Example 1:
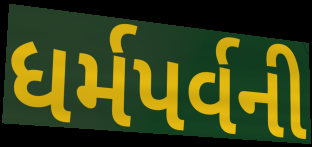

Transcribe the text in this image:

ધર્મપર્વની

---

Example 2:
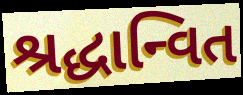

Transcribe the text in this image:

શ્રદ્ધાન્વિત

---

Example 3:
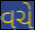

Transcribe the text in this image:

વચે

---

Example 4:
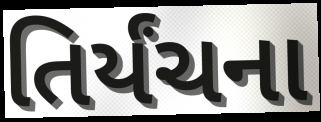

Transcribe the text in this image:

તિર્યંચના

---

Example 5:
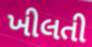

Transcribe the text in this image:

ખીલતી